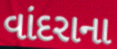
વાંદરાના